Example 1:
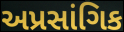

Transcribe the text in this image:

અપ્રસાંગિક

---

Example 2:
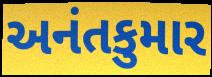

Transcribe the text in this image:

અનંતકુમાર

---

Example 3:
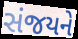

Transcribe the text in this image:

સંજયને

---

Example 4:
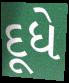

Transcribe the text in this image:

દૂધે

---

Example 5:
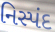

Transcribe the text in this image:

નિસ્પંદ